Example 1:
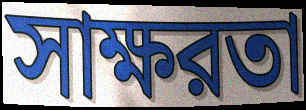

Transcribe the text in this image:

সাক্ষরতা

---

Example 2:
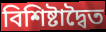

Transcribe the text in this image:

বিশিষ্টাদ্বৈত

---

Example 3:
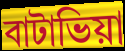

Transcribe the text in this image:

বাটাভিয়া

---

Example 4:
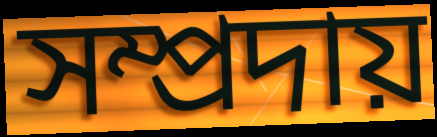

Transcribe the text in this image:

সম্প্রদায়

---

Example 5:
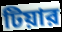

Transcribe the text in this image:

টিয়ার